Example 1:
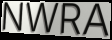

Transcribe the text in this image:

NWRA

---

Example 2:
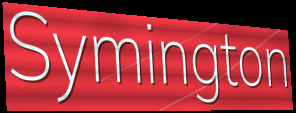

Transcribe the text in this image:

Symington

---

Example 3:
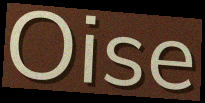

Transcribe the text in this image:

Oise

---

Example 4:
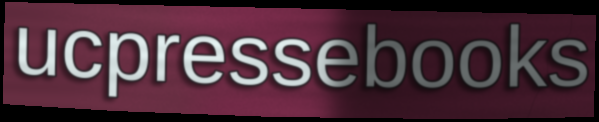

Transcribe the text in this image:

ucpressebooks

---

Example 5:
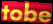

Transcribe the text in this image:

tobe